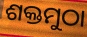
ଶକ୍ତମୁଠା